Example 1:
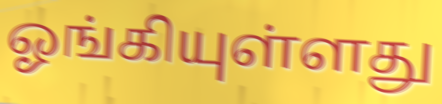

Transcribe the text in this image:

ஓங்கியுள்ளது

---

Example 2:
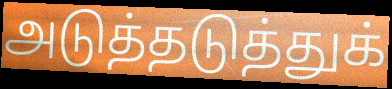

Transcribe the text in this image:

அடுத்தடுத்துக்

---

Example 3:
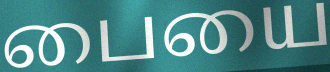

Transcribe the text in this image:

பையை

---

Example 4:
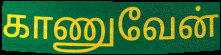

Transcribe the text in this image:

காணுவேன்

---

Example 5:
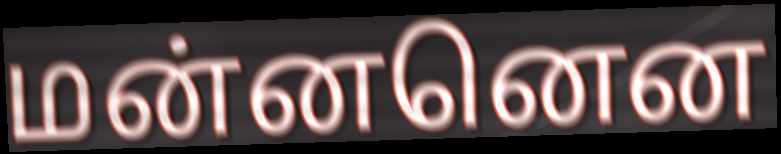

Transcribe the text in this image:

மன்னனென